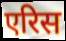
एरिस